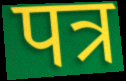
पत्र